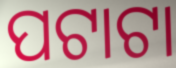
ପଟାଟା